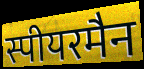
स्पीयरमैन